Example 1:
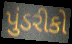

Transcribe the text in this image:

પુંડરીકો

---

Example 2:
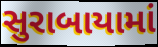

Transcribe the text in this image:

સુરાબાયામાં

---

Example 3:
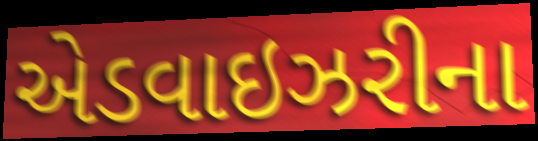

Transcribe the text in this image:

એડવાઇઝરીના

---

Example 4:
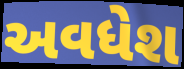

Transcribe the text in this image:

અવધેશ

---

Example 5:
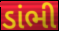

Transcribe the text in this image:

ડાંભી